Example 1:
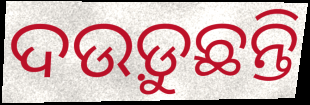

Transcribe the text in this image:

ଦଉଡ଼ୁଛନ୍ତି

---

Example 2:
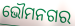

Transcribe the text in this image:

ଭୌମନଗର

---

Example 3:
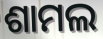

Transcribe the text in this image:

ଶାମଲ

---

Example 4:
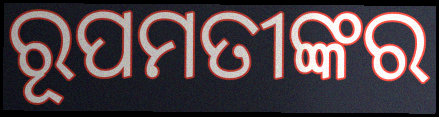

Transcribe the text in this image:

ରୂପମତୀଙ୍କର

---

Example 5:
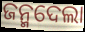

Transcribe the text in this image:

ଜନ୍ମଦେଲା